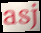
asj